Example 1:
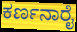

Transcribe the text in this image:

ಕರ್ಣನಾರೈ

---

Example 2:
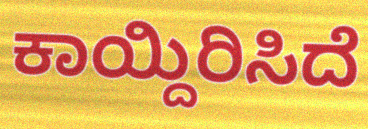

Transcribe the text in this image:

ಕಾಯ್ದಿರಿಸಿದೆ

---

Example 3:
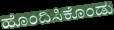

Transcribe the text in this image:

ಹೊಂದಿಸಿಕೊಂಡು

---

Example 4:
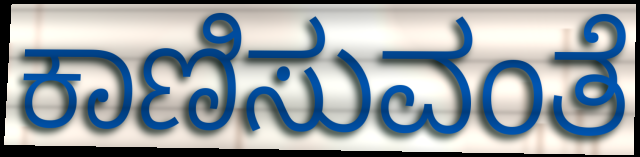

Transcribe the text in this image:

ಕಾಣಿಸುವಂತೆ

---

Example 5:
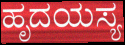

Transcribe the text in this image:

ಹೃದಯಸ್ಯ